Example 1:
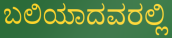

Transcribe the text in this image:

ಬಲಿಯಾದವರಲ್ಲಿ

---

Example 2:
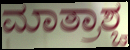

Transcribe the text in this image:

ಮಾತ್ರಾಶ್ಚ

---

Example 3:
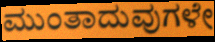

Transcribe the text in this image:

ಮುಂತಾದುವುಗಳೇ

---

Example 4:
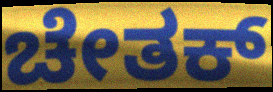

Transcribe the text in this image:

ಚೇತಕ್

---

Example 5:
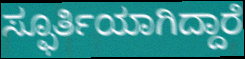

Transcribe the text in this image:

ಸ್ಫೂರ್ತಿಯಾಗಿದ್ದಾರೆ